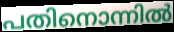
പതിനൊന്നിൽ